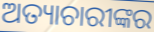
ଅତ୍ୟାଚାରୀଙ୍କର